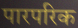
पारपरिक